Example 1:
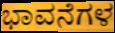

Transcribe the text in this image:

ಭಾವನೆಗಳ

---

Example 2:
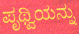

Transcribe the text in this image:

ಪೃಥ್ವಿಯನ್ನು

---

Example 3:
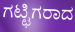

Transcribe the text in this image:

ಗಟ್ಟಿಗರಾದ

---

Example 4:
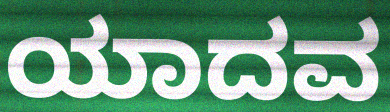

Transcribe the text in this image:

ಯಾದವ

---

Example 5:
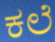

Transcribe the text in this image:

ಕಲೆ